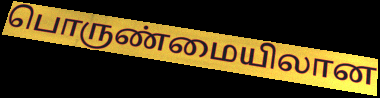
பொருண்மையிலான